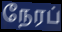
நேரப்